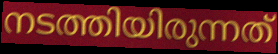
നടത്തിയിരുന്നത്